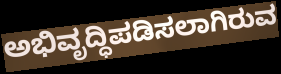
ಅಭಿವೃದ್ಧಿಪಡಿಸಲಾಗಿರುವ